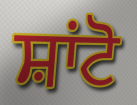
ਸ਼ਾਂਟੋ